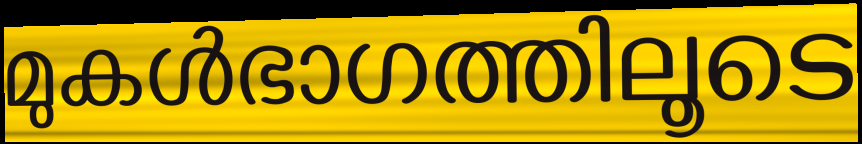
മുകൾഭാഗത്തിലൂടെ